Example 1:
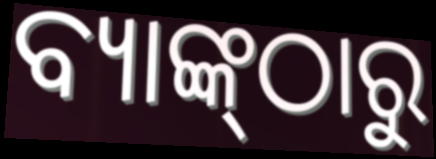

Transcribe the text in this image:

ବ୍ୟାଙ୍କ୍‌ଠାରୁ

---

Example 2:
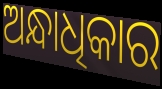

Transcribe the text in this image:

ଅନ୍ଧାଧିକାର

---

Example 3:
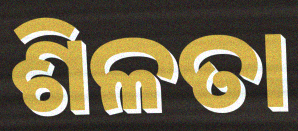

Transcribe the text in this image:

ଶିଳତା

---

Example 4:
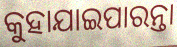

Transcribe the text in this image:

କୁହାଯାଇପାରନ୍ତା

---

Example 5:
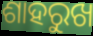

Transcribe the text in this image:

ଶାହରୁଖ